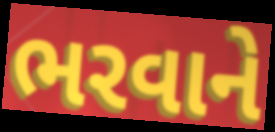
ભરવાને